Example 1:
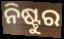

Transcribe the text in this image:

ନିଷ୍ଟୁର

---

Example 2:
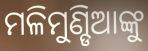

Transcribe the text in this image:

ମଳିମୁଣ୍ଡିଆଙ୍କୁ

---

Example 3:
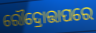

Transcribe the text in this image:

ରୌଦ୍ରୋତ୍ତାପରେ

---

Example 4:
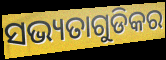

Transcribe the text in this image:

ସଭ୍ୟତାଗୁଡିକର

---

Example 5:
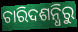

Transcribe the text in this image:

ଚାରିଦଶନ୍ଧିରୁ